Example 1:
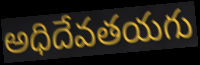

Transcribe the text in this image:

అధిదేవతయగు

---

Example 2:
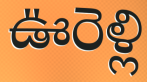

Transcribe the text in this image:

ఊరెళ్లి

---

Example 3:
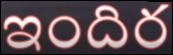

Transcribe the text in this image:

ఇందిర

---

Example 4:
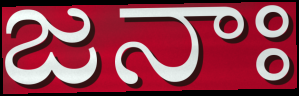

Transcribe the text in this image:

జనాః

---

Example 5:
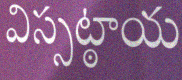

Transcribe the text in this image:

విస్సట్ఠాయ